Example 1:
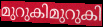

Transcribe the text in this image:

മുറുകിമുറുകി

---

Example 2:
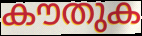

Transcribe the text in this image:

കൗതുക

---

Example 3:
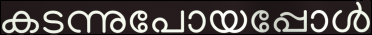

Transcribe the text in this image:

കടന്നുപോയപ്പോൾ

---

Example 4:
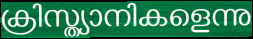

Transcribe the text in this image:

ക്രിസ്ത്യാനികളെന്നു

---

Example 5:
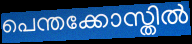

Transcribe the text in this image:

പെന്തക്കോസ്തിൽ